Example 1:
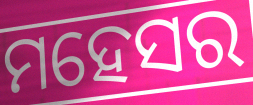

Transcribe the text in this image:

ମହେସର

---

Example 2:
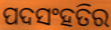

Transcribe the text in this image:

ପଦସଂହତିର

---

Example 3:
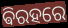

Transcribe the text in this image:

ଵିରହରେ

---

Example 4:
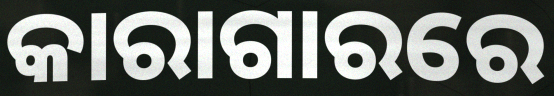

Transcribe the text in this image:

କାରାଗାରରେ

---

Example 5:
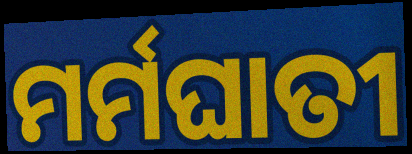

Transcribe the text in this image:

ମର୍ମଘାତୀ